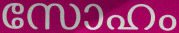
സോഹം